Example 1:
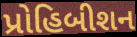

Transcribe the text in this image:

પ્રોહિબીશન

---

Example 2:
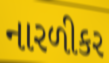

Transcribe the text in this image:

નારળીકર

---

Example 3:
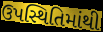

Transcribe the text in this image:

ઉપસ્થિતિમાંથી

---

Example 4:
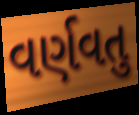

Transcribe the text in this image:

વર્ણવતુ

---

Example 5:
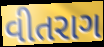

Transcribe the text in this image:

વીતરાગ